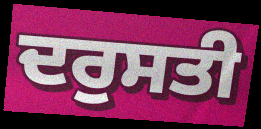
ਦਰੁਸਤੀ